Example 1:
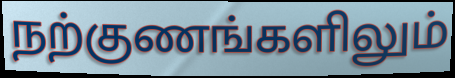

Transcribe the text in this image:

நற்குணங்களிலும்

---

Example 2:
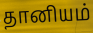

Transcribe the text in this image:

தானியம்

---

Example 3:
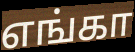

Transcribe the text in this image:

எங்கா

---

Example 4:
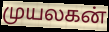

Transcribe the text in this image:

முயலகன்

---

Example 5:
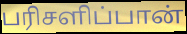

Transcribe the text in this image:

பரிசளிப்பான்